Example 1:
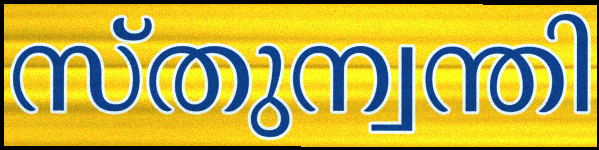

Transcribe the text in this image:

സ്തുന്വന്തി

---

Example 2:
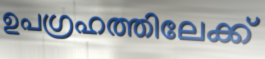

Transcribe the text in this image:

ഉപഗ്രഹത്തിലേക്ക്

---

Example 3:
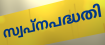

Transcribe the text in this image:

സ്വപ്നപദ്ധതി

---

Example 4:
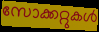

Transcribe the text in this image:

സോക്കറ്റുകൾ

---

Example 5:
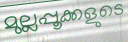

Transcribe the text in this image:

മുല്ലപ്പൂക്കളുടെ